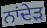
ਨਾਂਦੇੜ